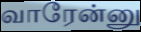
வாரேன்னு